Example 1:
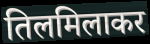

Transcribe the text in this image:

तिलमिलाकर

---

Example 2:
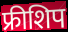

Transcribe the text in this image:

फ्रीशिप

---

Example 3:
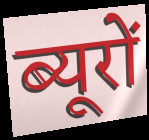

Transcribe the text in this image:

ब्यूरों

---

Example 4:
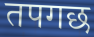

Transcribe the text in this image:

तपगछ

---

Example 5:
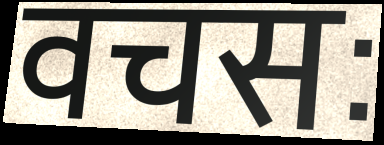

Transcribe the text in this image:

वचसः